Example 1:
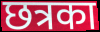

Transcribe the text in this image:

छत्रका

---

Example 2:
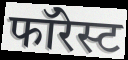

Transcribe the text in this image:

फॉरेस्‍ट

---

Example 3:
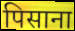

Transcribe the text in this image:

पिसाना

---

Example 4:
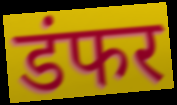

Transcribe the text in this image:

डंफर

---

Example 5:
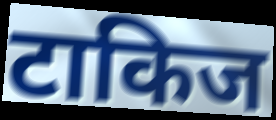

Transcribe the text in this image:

टाकिज